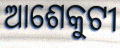
ଆଶେକୁଟୀ